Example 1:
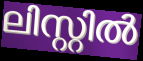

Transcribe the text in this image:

ലിസ്റ്റിൽ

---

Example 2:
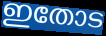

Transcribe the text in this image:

ഇതോട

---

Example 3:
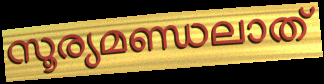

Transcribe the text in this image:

സൂര്യമണ്ഡലാത്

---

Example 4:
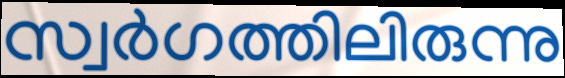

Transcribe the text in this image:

സ്വർഗത്തിലിരുന്നു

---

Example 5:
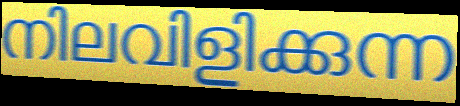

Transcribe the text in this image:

നിലവിളിക്കുന്ന